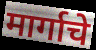
मार्गाचे